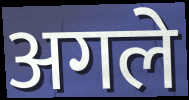
अगले